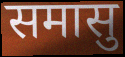
समासु